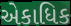
એકાધિક